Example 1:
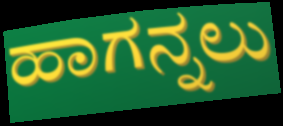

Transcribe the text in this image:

ಹಾಗನ್ನಲು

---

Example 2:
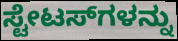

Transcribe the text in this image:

ಸ್ಟೇಟಸ್‌ಗಳನ್ನು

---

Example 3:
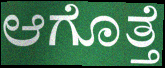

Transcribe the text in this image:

ಆಗೊತ್ತೆ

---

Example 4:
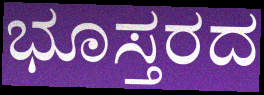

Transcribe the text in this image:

ಭೂಸ್ತರದ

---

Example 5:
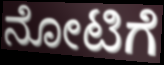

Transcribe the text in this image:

ನೋಟಿಗೆ